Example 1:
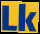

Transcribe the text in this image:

Lk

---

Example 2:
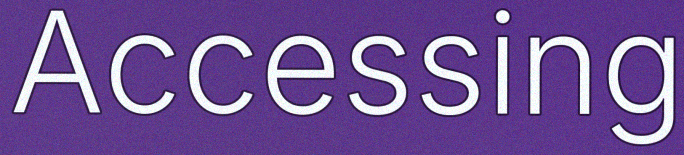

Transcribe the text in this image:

Accessing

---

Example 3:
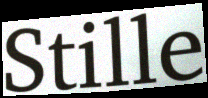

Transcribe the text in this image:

Stille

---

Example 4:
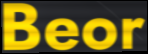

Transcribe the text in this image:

Beor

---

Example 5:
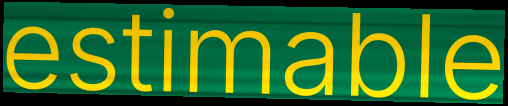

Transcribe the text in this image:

estimable